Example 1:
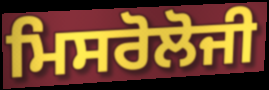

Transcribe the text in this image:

ਮਿਸਰੋਲੋਜੀ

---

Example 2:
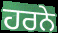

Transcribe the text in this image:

ਹਰਨੇ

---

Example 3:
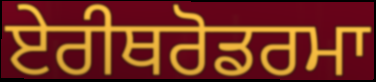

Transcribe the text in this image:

ਏਰੀਥਰੋਡਰਮਾ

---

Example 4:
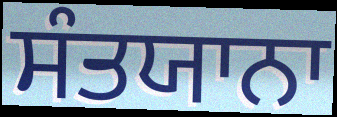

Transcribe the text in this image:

ਸੰਤਯਾਨਾ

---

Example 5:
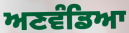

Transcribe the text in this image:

ਅਣਵੰਡਿਆ